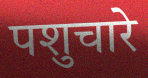
पशुचारे